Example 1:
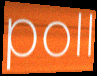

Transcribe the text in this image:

poll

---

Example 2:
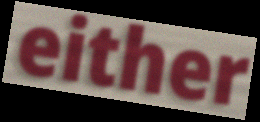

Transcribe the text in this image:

either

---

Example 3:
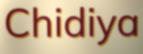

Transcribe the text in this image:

Chidiya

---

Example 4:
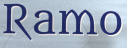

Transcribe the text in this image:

Ramo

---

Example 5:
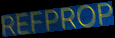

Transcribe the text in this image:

REFPROP